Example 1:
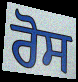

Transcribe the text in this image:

ਰੋਸ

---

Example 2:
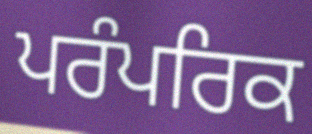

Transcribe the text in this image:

ਪਰੰਪਰਿਕ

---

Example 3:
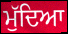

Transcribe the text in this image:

ਮੁੱਦਿਆ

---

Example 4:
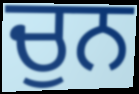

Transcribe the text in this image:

ਚੁਨ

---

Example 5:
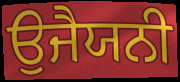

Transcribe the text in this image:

ਉਜੈਯਨੀ